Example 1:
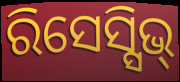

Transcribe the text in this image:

ରିସେସ୍ସିଭ୍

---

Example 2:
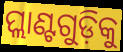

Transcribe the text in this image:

ପ୍ଲାଣ୍ଟଗୁଡ଼ିକୁ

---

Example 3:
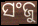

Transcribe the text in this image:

ସଂଜୁ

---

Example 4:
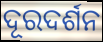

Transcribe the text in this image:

ଦୂରଦର୍ଶନ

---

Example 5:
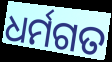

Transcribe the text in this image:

ଧର୍ମଗତ